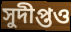
সুদীপ্তও